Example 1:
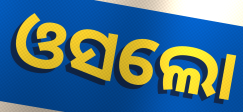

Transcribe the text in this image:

ଓସଲୋ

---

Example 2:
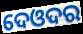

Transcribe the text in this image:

ଦେଓଦର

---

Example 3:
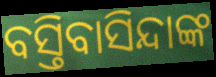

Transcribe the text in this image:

ବସ୍ତିବାସିନ୍ଦାଙ୍କ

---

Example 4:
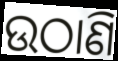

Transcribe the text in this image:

ଉଠାଣି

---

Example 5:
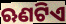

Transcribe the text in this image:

ଋଣଟିଏ